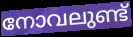
നോവലുണ്ട്